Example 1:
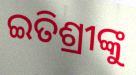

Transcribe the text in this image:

ଇତିଶ୍ରୀଙ୍କୁ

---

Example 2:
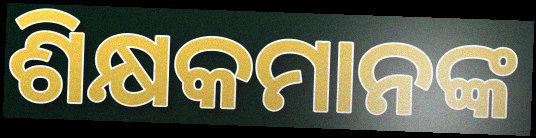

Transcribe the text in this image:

ଶିକ୍ଷକମାନଙ୍କ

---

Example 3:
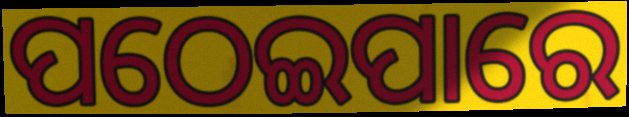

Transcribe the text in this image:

ପଠେଇପାରେ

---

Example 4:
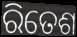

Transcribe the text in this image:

ରିତେଶ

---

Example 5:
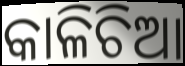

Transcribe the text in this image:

କାଳିଚିଆ